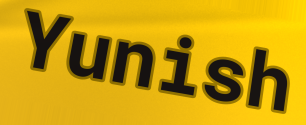
Yunish